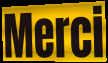
Merci